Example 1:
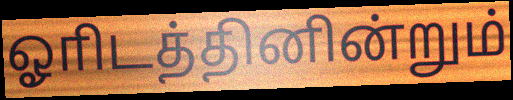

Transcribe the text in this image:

ஓரிடத்தினின்றும்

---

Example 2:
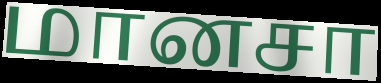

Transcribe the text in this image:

மானசா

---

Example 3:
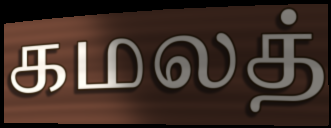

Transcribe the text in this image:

கமலத்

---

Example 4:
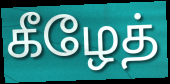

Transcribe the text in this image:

கீழேத்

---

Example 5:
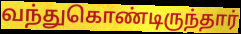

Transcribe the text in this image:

வந்துகொண்டிருந்தார்